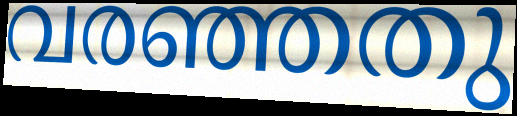
വരഞ്ഞതു